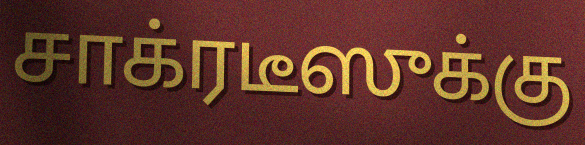
சாக்ரடீஸுக்கு